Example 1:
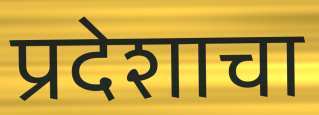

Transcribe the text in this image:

प्रदेशाचा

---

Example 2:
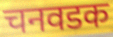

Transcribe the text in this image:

चनवडक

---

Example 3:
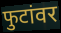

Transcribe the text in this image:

फुटांवर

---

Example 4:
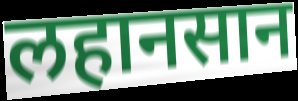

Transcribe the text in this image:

लहानसान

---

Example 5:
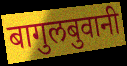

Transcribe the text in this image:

बागुलबुवानी